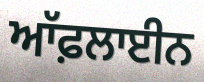
ਆੱਫ਼ਲਾਈਨ